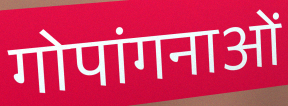
गोपांगनाओं